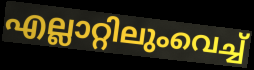
എല്ലാറ്റിലുംവെച്ച്